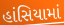
હાંસિયામાં